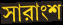
সারাংশ